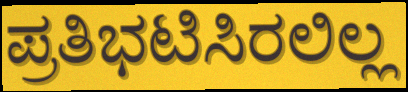
ಪ್ರತಿಭಟಿಸಿರಲಿಲ್ಲ